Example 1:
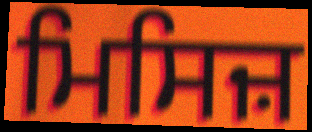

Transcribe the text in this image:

ਮਿਸਿਜ਼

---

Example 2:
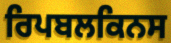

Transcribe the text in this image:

ਰਿਪਬਲਕਿਨਸ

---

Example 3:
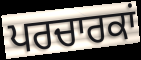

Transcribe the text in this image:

ਪਰਚਾਰਕਾਂ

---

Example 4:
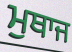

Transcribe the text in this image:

ਮੁਥਾਜ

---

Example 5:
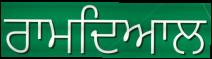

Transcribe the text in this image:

ਰਾਮਦਿਆਲ